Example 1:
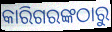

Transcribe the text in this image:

କାରିଗରଙ୍କଠାରୁ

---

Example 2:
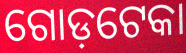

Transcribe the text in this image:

ଗୋଡ଼ଟେକା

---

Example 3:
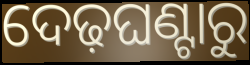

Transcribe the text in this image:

ଦେଢ଼ଘଣ୍ଟାରୁ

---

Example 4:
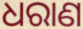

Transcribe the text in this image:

ଧରାଣ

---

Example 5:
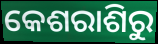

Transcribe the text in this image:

କେଶରାଶିରୁ